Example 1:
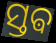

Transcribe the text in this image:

ସ୍ତଵ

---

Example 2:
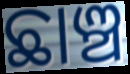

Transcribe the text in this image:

ଛାଞ୍ଚ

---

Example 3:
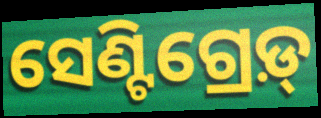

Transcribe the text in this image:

ସେଣ୍ଟିଗ୍ରେଡ଼୍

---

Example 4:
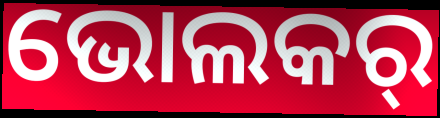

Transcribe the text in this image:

ଭୋଲକର୍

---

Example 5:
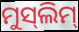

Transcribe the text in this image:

ମୁସ୍‌ଲିମ୍